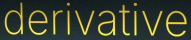
derivative